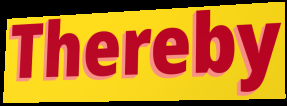
Thereby